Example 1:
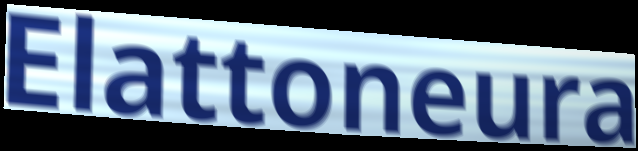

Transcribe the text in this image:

Elattoneura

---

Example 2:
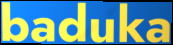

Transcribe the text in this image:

baduka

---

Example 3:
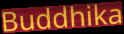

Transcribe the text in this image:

Buddhika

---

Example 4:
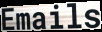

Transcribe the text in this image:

Emails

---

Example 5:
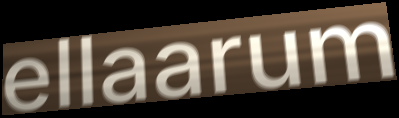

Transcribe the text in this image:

ellaarum